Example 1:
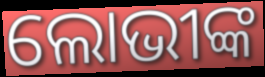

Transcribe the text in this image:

ଲୋଭୀଙ୍କ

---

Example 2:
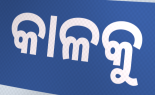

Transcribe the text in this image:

କାଳକୁ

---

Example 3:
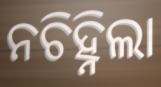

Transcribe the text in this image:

ନଚିହ୍ନିଲା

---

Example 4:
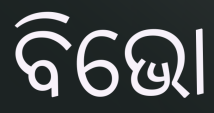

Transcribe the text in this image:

ବିଭୋ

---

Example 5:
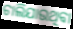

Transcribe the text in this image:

ଚାଲିଯାଉଥିବା